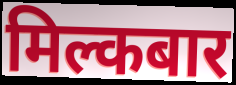
मिल्कबार